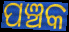
ପଞ୍ଚକ